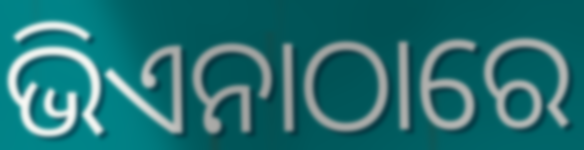
ଭିଏନାଠାରେ